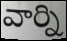
వార్ని